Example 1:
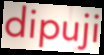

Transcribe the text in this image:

dipuji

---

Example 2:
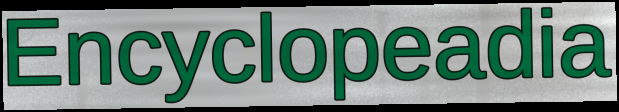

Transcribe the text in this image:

Encyclopeadia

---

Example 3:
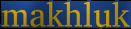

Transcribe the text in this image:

makhluk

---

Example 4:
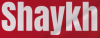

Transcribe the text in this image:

Shaykh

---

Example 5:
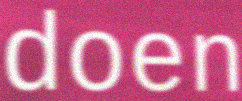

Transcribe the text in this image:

doen